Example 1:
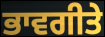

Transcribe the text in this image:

ਭਾਵਗੀਤੇ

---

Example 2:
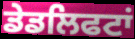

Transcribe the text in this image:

ਡੇਡਲਿਫਟਾਂ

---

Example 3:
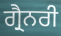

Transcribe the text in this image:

ਗ੍ਰੈਨਰੀ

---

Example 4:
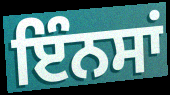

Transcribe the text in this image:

ਇੰਨਸਾਂ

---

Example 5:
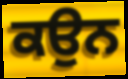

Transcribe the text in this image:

ਕਉਨ